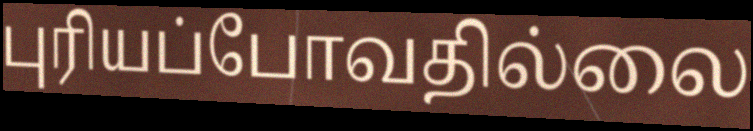
புரியப்போவதில்லை